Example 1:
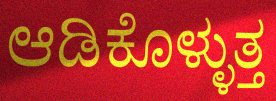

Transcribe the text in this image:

ಆಡಿಕೊಳ್ಳುತ್ತ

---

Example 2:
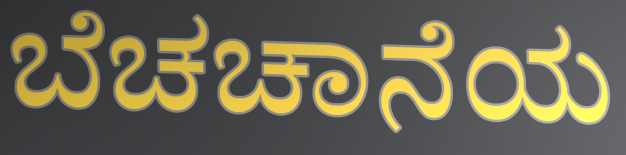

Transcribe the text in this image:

ಬೆಚಚಾನೆಯ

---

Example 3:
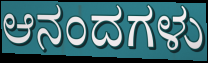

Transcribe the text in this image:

ಆನಂದಗಳು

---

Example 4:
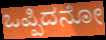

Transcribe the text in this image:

ಒಪ್ಪಿದನೋ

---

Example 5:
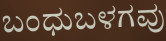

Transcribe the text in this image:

ಬಂಧುಬಳಗವು